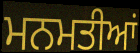
ਮਨਮਤੀਆਂ